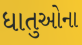
ધાતુઓના